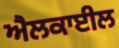
ਐਲਕਾਈਲ